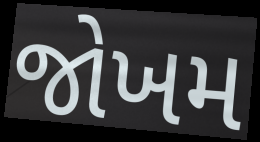
જોખમ